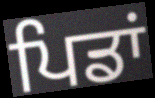
ਪਿਡਾਂ